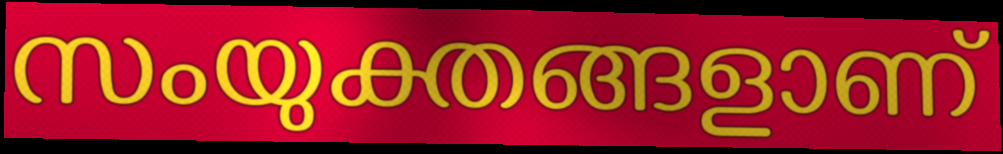
സംയുക്തങ്ങളാണ്